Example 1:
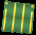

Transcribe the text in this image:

illi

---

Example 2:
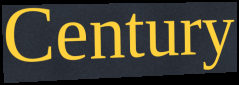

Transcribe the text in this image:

Century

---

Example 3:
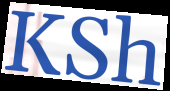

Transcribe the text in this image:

KSh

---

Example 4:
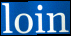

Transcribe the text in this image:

loin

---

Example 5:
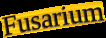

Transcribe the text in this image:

Fusarium